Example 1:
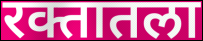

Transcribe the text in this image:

रक्तातला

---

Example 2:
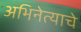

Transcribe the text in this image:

अभिनेत्याचे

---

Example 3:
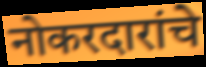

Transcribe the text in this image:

नोकरदारांचे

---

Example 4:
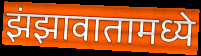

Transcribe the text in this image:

झंझावातामध्ये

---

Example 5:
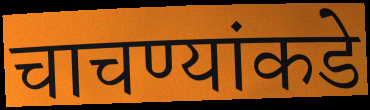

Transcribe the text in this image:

चाचण्यांकडे